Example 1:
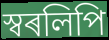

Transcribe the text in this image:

স্বৰলিপি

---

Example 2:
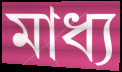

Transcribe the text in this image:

মাধ্য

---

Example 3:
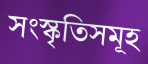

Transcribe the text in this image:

সংস্কৃতিসমূহ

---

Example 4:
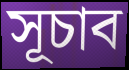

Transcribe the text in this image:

সূচাব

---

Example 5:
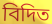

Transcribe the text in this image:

বিদিত